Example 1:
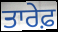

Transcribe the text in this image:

ਤਾਰੇਫ਼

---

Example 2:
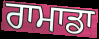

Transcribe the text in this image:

ਰਾਮਾਡਾ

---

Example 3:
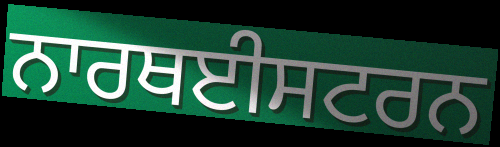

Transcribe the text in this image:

ਨਾਰਥਈਸਟਰਨ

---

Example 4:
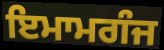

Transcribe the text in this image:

ਇਮਾਮਗੰਜ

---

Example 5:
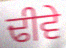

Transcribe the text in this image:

ਢੀਵੇ